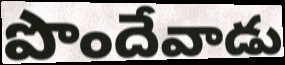
పొందేవాడు